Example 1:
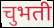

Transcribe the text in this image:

चुभती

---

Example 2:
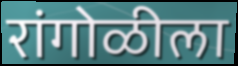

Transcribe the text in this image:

रांगोळीला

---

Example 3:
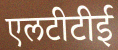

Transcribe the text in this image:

एलटीटीई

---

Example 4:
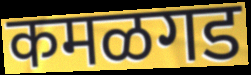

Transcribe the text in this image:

कमळगड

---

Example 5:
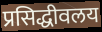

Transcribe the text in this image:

प्रसिद्धीवलय